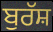
ਬੁਰੱਸ਼